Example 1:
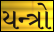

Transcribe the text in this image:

યન્ત્રો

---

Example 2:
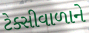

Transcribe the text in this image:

ટેક્સીવાળાને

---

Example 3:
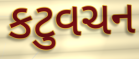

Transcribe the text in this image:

કટુવચન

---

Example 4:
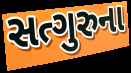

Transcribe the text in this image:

સત્ગુરુના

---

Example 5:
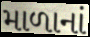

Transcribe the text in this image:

માળાનાં